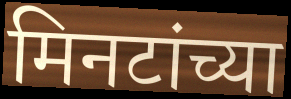
मिनटांच्या